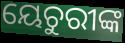
ୟେଚୁରୀଙ୍କ